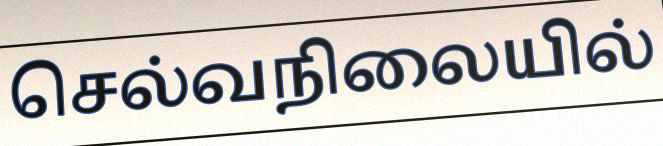
செல்வநிலையில்